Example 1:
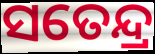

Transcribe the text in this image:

ସତେନ୍ଦ୍ର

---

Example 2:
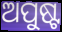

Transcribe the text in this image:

ଅପୁଷ୍ଟ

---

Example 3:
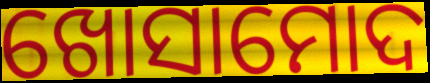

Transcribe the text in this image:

ଖୋସାମୋଦ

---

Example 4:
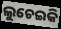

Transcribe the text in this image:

ଲୁଚେଇକି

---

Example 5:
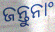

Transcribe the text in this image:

ଜନ୍ତୁନାଂ